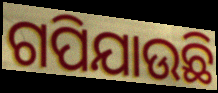
ଗପିଯାଉଛି